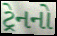
ટ્રેનનો